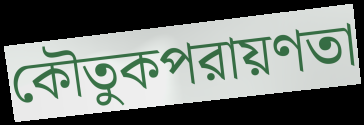
কৌতুকপরায়ণতা